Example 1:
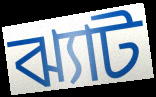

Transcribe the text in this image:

ঝ্যাট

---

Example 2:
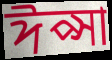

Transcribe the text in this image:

ঈপ্সা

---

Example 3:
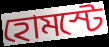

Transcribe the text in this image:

হোমস্টে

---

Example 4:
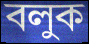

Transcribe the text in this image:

বলুক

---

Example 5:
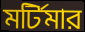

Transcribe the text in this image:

মর্টিমার